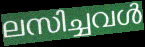
ലസിച്ചവൾ